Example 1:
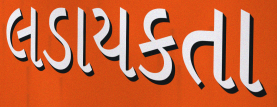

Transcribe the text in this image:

લડાયકતા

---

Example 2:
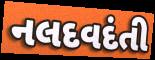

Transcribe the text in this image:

નલદવદંતી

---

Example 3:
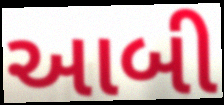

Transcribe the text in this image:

આબી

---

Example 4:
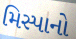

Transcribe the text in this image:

મિસ્પાનો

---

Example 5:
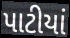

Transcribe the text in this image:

પાટીયાં